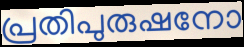
പ്രതിപുരുഷനോ